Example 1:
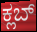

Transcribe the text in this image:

ಕ್ಲಬ್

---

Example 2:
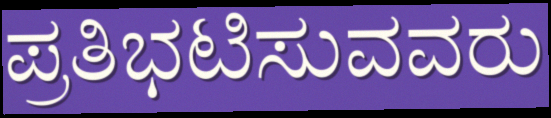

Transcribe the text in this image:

ಪ್ರತಿಭಟಿಸುವವರು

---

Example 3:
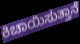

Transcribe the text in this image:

ಕಿಚಾಯಿಸುತ್ತಾನೆ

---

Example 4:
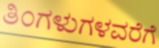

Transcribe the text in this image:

ತಿಂಗಳುಗಳವರೆಗೆ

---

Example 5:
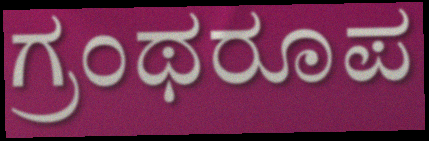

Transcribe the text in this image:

ಗ್ರಂಥರೂಪ